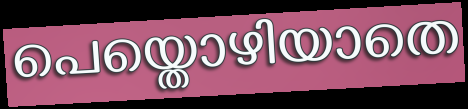
പെയ്തൊഴിയാതെ